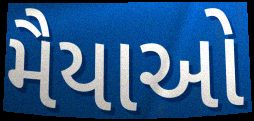
મૈયાઓ